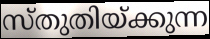
സ്തുതിയ്ക്കുന്ന